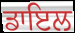
ਡਾਇਲ